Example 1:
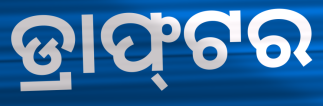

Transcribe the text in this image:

ଡ୍ରାଫ୍‌ଟର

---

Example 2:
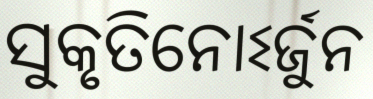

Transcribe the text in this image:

ସୁକୃତିନୋଽର୍ଜୁନ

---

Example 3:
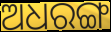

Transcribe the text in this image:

ଅଧରଙ୍ଗ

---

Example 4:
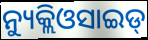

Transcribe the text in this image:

ନ୍ୟୁକ୍ଲିଓସାଇଡ୍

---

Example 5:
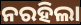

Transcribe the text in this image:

ନରହିଲା